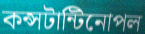
কন্সটান্টিনোপল